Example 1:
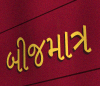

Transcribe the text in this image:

બીજમાત્ર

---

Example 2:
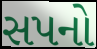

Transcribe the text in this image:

સપનો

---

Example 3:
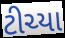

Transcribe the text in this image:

ટીચ્યા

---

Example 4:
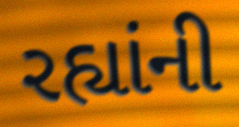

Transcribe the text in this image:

રહ્યાંની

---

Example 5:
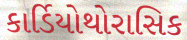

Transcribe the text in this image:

કાર્ડિયોથોરાસિક